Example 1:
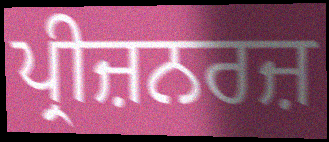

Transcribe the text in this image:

ਪ੍ਰੀਜ਼ਨਰਜ਼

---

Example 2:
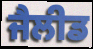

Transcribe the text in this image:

ਜੈਲੀਡ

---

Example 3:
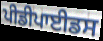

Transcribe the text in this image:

ਪੀਡੀਪਾਈਡਸ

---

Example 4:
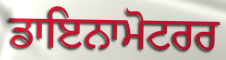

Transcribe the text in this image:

ਡਾਇਨਾਮੋਟਰਰ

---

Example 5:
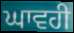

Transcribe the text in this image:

ਘਾਵਹੀ